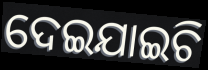
ଦେଇଯାଇଚି